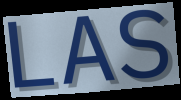
LAS